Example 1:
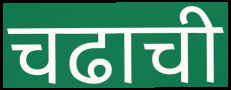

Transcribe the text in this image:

चढाची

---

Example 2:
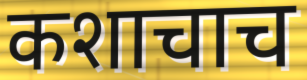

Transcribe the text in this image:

कशाचाच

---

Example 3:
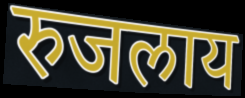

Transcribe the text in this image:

रुजलाय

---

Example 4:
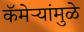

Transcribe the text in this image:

कॅमेऱ्यांमुळे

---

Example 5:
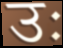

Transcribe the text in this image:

उः